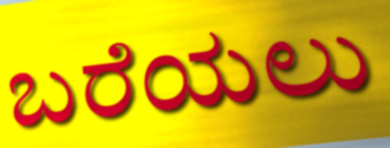
ಬರೆಯಲು